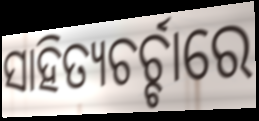
ସାହିତ୍ୟଚର୍ଚ୍ଚାରେ